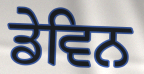
ਡੇਵਿਨ